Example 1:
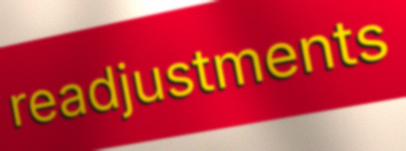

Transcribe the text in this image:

readjustments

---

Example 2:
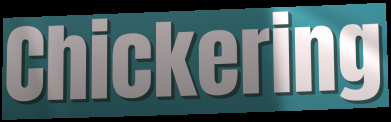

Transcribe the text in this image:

Chickering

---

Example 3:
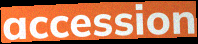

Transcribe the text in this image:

accession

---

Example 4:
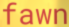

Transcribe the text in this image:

fawn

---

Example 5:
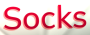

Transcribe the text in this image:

Socks